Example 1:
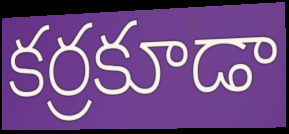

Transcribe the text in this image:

కర్రకూడా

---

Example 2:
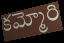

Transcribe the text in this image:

కమ్మోరి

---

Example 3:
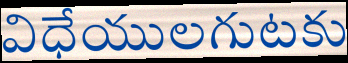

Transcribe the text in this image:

విధేయులగుటకు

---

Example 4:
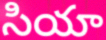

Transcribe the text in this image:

సియా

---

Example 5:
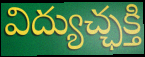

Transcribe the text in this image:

విద్యుచ్ఛక్తి